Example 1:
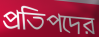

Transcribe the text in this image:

প্রতিপদের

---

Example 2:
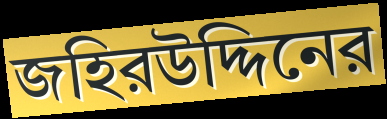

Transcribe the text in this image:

জহিরউদ্দিনের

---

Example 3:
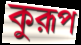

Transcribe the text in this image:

কুরূপ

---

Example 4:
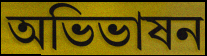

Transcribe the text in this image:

অভিভাষন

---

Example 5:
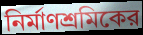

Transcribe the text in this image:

নির্মাণশ্রমিকের